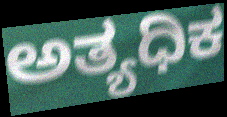
ಅತ್ಯಧಿಕ